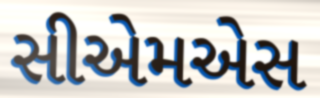
સીએમએસ